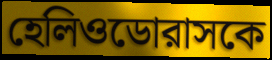
হেলিওডোরাসকে